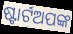
ଷ୍ଟାର୍ଟଅପଙ୍କ